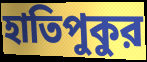
হাতিপুকুর